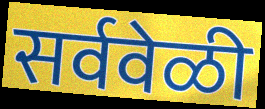
सर्ववेळी